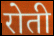
रोती